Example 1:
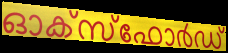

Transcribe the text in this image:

ഓക്സ്ഫോർഡ്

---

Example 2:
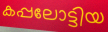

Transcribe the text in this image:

കപ്പലോട്ടിയ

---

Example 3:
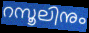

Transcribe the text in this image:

റസൂലിനും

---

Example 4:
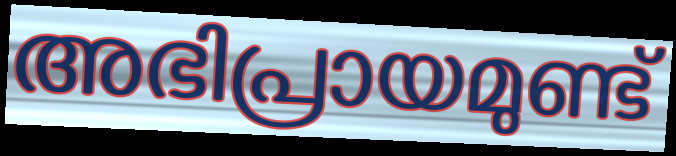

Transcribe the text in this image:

അഭിപ്രായമുണ്ട്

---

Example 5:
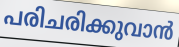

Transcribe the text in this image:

പരിചരിക്കുവാൻ